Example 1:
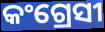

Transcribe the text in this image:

କଂଗ୍ରେସୀ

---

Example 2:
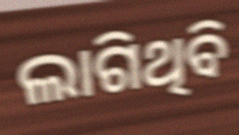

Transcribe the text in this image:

ଲାଗିଥିବି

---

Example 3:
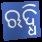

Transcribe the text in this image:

ଋଦ୍ଧି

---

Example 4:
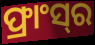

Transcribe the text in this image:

ଫ୍ରାଂସ୍‍ର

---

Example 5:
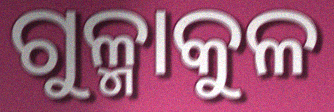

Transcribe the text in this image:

ଗୁଳ୍ମାକୁଳ